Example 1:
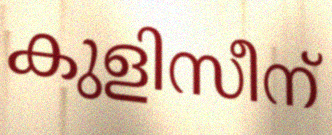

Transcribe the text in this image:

കുളിസീന്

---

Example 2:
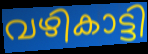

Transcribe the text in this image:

വഴികാട്ടി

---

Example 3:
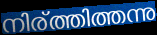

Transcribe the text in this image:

നിര്ത്തിത്തന്നു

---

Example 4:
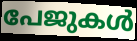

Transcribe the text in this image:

പേജുകൾ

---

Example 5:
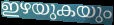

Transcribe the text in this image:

ഇഴയുകയും